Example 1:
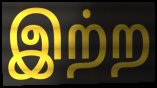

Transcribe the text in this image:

இற்ற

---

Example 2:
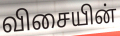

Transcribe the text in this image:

விசையின்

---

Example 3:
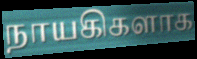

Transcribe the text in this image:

நாயகிகளாக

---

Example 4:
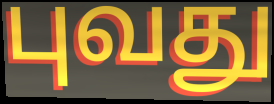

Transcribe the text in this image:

புவது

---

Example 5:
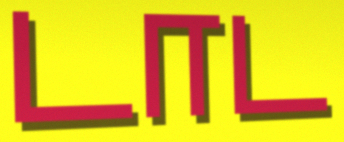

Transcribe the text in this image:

டாட